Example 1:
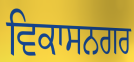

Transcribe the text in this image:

ਵਿਕਾਸਨਗਰ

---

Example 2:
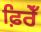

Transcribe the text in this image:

ਫ਼ਿਰੇਁ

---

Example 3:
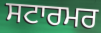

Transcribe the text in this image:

ਸਟਾਰਮਰ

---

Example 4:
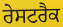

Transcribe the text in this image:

ਰੇਸਟਰੈਕ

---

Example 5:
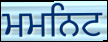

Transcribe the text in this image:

ਮਮਨਿਟ